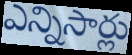
ఎన్నిసార్లు